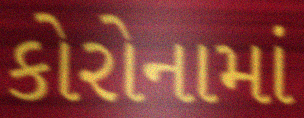
કોરોનામાં